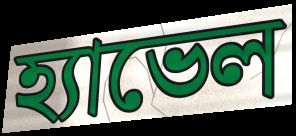
হ্যাভেল